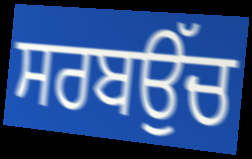
ਸਰਬਉੱਚ